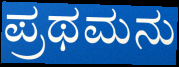
ಪ್ರಥಮನು